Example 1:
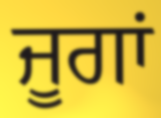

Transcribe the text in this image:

ਜੂਗਾਂ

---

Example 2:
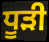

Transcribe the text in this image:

ਧੂੜੀ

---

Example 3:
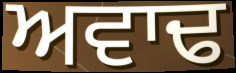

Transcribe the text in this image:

ਅਵਾਢ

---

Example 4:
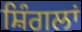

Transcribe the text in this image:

ਸ਼ਿੰਗਲਾਂ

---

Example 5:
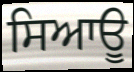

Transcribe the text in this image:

ਸਿਆਊ